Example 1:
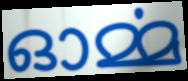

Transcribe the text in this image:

ഓൎമ്മ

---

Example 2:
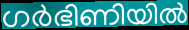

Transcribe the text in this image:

ഗർഭിണിയിൽ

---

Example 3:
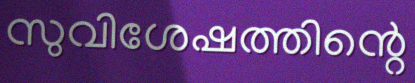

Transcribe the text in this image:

സുവിശേഷത്തിന്റെ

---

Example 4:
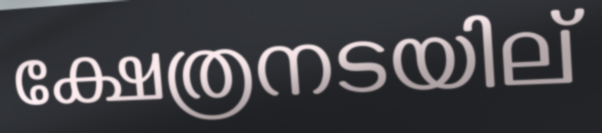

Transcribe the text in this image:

ക്ഷേത്രനടയില്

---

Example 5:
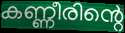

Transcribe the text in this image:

കണ്ണീരിന്റെ